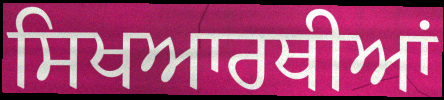
ਸਿਖਆਰਥੀਆਂ